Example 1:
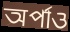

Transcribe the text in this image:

অর্পাও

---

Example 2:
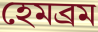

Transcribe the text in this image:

হেমব্রম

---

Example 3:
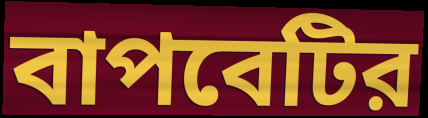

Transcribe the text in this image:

বাপবেটির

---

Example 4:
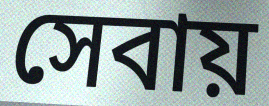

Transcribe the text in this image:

সেবায়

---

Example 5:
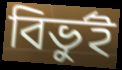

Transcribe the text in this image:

বির্ভুই